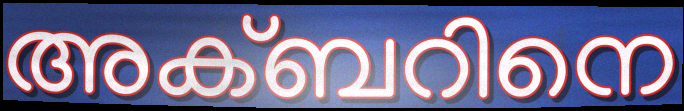
അക്ബറിനെ